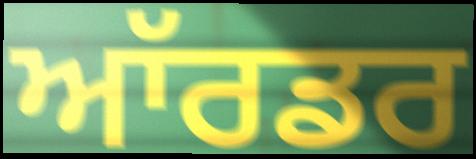
ਆੱਰਡਰ